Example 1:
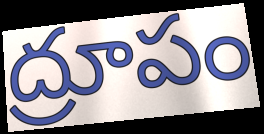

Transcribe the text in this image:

ద్రూపం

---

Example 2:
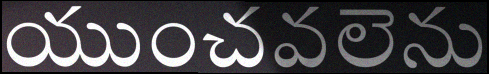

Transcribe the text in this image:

యుంచవలెను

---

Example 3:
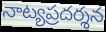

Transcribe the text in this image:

నాట్యప్రదర్శన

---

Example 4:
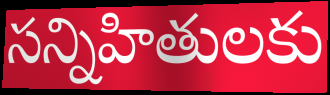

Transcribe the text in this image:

సన్నిహితులకు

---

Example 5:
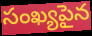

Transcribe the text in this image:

సంఖ్యపైన